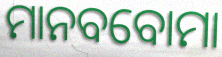
ମାନବବୋମା